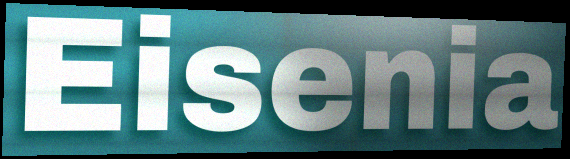
Eisenia